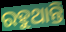
ରହୁଥାନ୍ତି